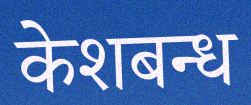
केशबन्ध